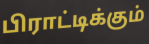
பிராட்டிக்கும்